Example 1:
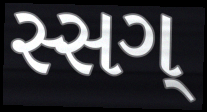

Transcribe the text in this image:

સ્સગ્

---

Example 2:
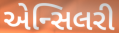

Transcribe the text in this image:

એન્સિલરી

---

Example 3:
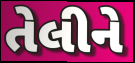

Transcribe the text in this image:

તેલીને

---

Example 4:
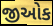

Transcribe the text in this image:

જીઓક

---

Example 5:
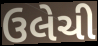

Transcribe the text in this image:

ઉલેચી